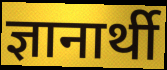
ज्ञानार्थी